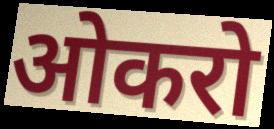
ओकरो